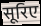
सूरिए